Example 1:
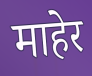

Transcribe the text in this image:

माहेर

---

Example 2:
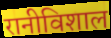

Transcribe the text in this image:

रानीविशाल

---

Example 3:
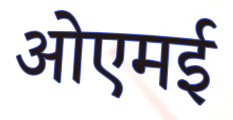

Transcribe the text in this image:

ओएमई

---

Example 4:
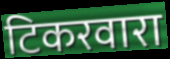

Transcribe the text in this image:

टिकरवारा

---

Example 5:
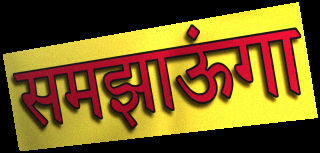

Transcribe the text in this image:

समझाऊंगा